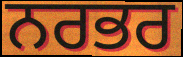
ਨਰਭਰ